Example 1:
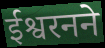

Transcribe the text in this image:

ईश्वरनने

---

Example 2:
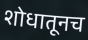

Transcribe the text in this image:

शोधातूनच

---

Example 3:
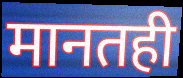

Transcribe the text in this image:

मानतही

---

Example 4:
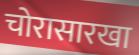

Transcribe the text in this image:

चोरासारखा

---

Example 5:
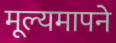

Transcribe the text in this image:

मूल्यमापने